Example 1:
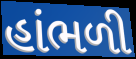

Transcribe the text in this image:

હાંભળી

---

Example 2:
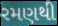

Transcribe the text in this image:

રમણથી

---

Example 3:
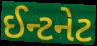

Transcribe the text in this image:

ઈન્ટનેટ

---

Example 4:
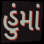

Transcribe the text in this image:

હુંમાં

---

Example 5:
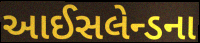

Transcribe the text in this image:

આઈસલેન્ડના